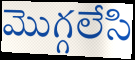
మొగ్గలేసి